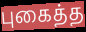
புகைத்த